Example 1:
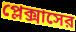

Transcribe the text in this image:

প্লেক্সাসের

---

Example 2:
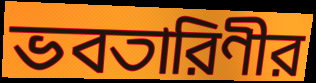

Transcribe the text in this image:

ভবতারিণীর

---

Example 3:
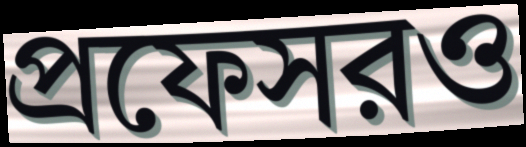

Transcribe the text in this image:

প্রফেসরও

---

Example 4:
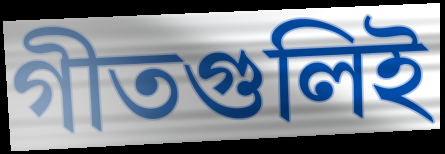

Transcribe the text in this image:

গীতগুলিই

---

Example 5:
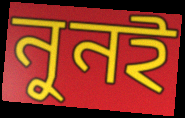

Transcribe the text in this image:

নুনই